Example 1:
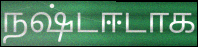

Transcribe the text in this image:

நஷ்டஈடாக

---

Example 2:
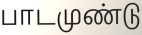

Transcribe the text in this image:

பாடமுண்டு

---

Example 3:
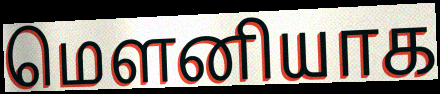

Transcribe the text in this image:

மெளனியாக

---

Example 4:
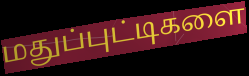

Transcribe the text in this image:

மதுப்புட்டிகளை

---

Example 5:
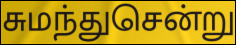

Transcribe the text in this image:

சுமந்துசென்று